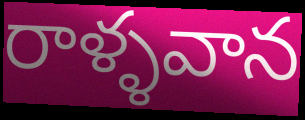
రాళ్ళవాన